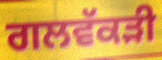
ਗਲਵੱਕੜੀ